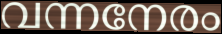
വന്നനേരം